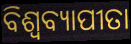
ବିଶ୍ୱବ୍ୟାପୀତା